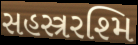
સહસ્ત્રરશ્મિ